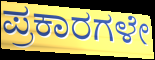
ಪ್ರಕಾರಗಳೇ